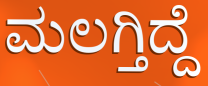
ಮಲಗ್ತಿದ್ದೆ